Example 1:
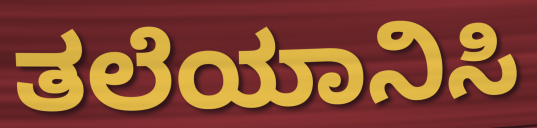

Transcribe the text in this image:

ತಲೆಯಾನಿಸಿ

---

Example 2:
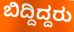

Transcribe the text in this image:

ಬಿದ್ದಿದ್ದರು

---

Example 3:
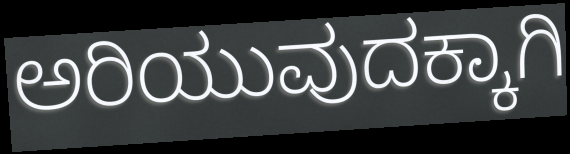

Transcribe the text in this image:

ಅರಿಯುವುದಕ್ಕಾಗಿ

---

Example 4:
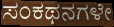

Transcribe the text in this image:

ಸಂಕಥನಗಳೇ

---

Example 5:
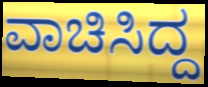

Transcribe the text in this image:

ವಾಚಿಸಿದ್ದ